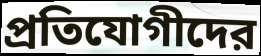
প্রতিযোগীদের